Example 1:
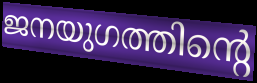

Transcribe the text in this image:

ജനയുഗത്തിന്റെ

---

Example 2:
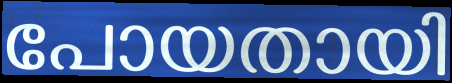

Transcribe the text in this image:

പോയതായി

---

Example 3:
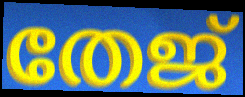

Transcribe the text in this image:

തേജ്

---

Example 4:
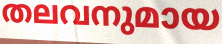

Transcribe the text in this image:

തലവനുമായ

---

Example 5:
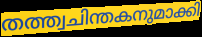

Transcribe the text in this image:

തത്ത്വചിന്തകനുമാക്കി